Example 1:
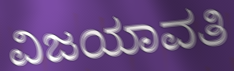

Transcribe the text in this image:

ವಿಜಯಾವತಿ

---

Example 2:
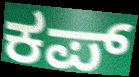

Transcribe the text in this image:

ಕಪ್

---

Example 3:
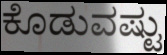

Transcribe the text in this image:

ಕೊಡುವಷ್ಟು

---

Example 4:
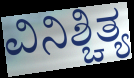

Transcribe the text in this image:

ವಿನಿಶ್ಚಿತ್ಯ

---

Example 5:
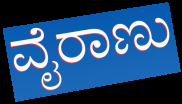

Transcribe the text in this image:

ವೈರಾಣು